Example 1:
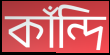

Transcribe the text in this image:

কাঁন্দি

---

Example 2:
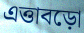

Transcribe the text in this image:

এত্তাবড়ো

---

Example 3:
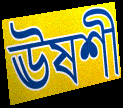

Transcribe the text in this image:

ঊষশী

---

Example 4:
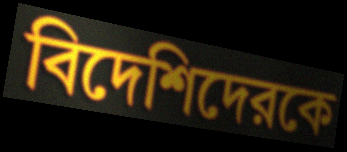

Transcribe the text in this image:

বিদেশিদেরকে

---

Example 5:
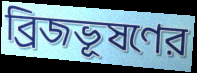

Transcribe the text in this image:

ব্রিজভূষণের